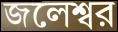
জলেশ্বর